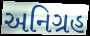
અનિગ્રહ